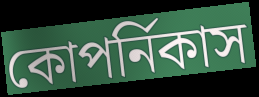
কোপর্নিকাস